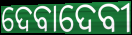
ଦେବାଦେବୀ